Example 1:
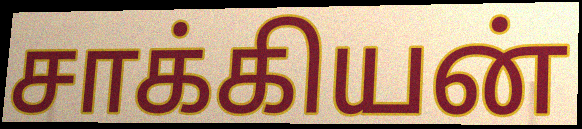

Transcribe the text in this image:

சாக்கியன்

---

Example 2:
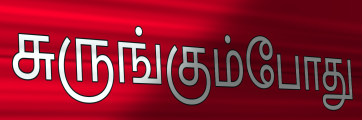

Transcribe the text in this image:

சுருங்கும்போது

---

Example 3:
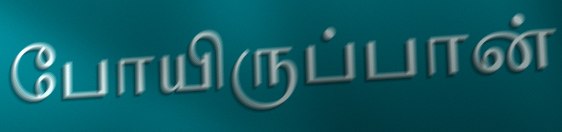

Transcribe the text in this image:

போயிருப்பான்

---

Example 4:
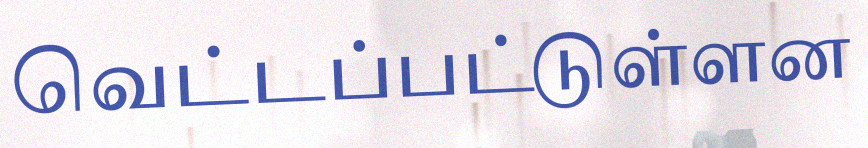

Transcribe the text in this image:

வெட்டப்பட்டுள்ளன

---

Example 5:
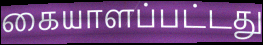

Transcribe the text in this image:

கையாளப்பட்டது